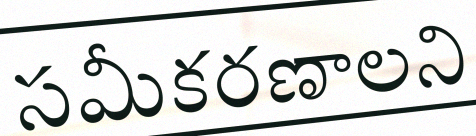
సమీకరణాలని